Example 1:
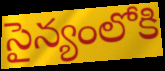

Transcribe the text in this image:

సైన్యంలోకి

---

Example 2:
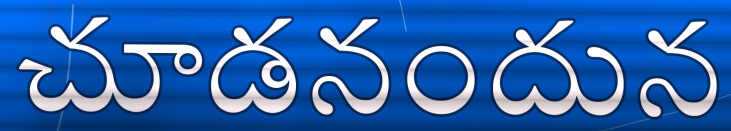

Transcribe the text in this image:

చూడనందున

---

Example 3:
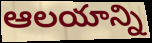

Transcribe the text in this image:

ఆలయాన్ని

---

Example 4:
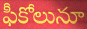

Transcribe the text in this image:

ఫీకోలునూ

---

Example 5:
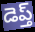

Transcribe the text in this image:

డెప్త్